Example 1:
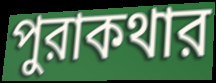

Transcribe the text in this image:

পুরাকথার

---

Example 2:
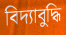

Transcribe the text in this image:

বিদ্যাবুদ্ধি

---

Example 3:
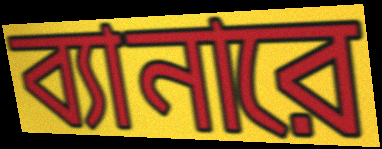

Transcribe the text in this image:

ব্যানারে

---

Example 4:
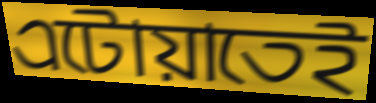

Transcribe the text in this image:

এটোয়াতেই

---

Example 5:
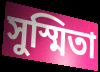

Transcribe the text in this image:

সুস্মিতা